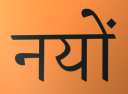
नयों